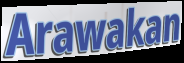
Arawakan